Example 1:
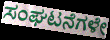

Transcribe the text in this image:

ಸಂಘಟನೆಗಳೇ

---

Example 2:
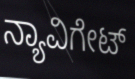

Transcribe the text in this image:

ನ್ಯಾವಿಗೇಟ್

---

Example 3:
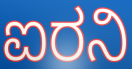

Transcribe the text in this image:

ಐರನಿ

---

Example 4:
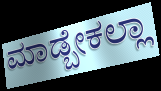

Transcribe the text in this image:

ಮಾಡ್ಬೇಕಲ್ಲಾ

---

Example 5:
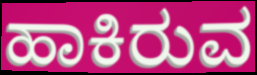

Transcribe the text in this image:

ಹಾಕಿರುವ